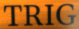
TRIG